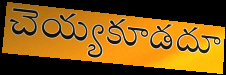
చెయ్యకూడదూ